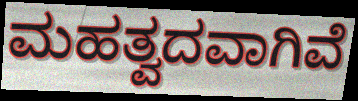
ಮಹತ್ವದವಾಗಿವೆ